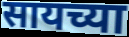
सायच्या